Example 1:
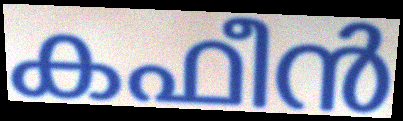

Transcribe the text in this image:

കഫീൻ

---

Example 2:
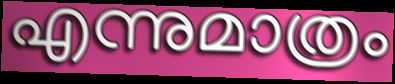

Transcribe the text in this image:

എന്നുമാത്രം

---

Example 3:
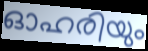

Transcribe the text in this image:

ഓഹരിയും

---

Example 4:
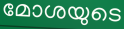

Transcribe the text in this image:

മോശയുടെ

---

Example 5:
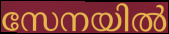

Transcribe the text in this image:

സേനയിൽ